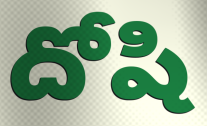
దోషి